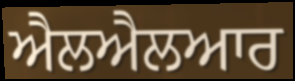
ਐਲਐਲਆਰ